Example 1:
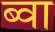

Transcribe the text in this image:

ब्वा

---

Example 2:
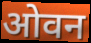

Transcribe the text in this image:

ओवन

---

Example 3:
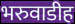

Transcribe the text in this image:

भरुवाडीह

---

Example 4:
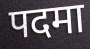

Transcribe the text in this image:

पदमा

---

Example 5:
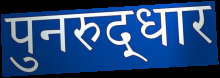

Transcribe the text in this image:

पुनरुद्धार